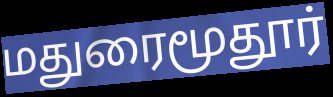
மதுரைமூதூர்